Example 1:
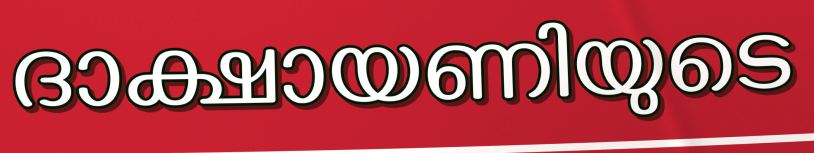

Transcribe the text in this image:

ദാക്ഷായണിയുടെ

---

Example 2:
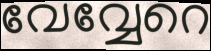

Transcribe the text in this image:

വേവ്വേറെ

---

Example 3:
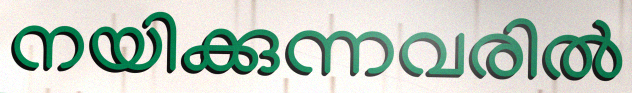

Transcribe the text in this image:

നയിക്കുന്നവരിൽ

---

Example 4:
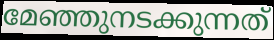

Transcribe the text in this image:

മേഞ്ഞുനടക്കുന്നത്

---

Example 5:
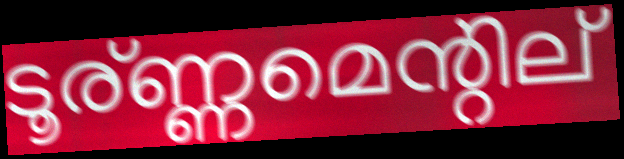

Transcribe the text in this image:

ടൂര്ണ്ണമെന്റില്